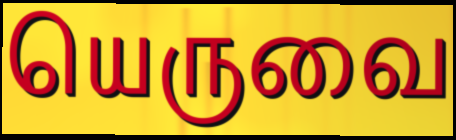
யெருவை